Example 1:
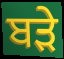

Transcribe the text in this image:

ਬਡ਼ੇ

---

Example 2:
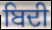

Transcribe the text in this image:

ਬਿਦੀ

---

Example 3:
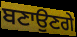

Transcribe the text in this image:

ਬਣਾਉਣਗੇ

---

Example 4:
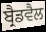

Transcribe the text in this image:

ਬ੍ਰੈਡਵੈਲ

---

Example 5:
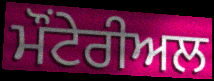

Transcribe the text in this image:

ਮੌਂਟੇਰੀਅਲ